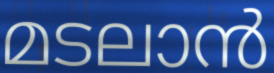
മടലാൻ